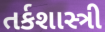
તર્કશાસ્ત્રી